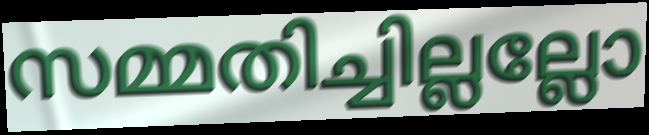
സമ്മതിച്ചില്ലല്ലോ